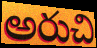
అరుచి